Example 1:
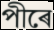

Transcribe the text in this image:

পীৰে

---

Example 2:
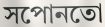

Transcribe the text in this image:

সপোনতো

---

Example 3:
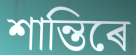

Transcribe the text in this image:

শান্তিৰে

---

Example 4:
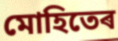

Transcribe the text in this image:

মোহিতেৰ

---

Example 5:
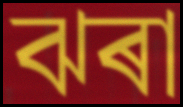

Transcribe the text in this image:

ঝৰা